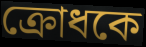
ক্রোধকে